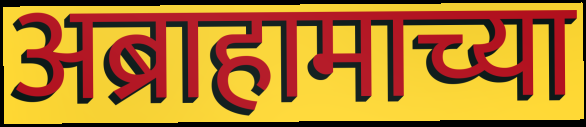
अब्राहामाच्या